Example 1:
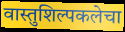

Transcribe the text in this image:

वास्तुशिल्पकलेचा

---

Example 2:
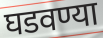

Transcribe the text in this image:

घडवण्या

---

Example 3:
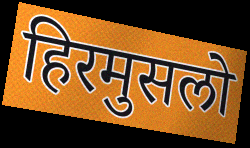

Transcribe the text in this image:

हिरमुसलो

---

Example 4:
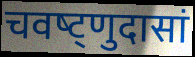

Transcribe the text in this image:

चवष्ट्णुदासां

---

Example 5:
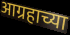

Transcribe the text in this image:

आग्रहाच्या